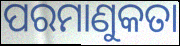
ପରମାଣୁକତା